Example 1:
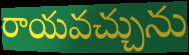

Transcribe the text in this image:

రాయవచ్చును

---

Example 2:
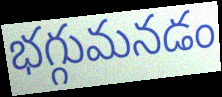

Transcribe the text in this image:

భగ్గుమనడం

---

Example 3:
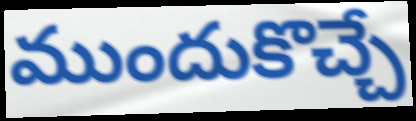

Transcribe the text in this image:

ముందుకొచ్చే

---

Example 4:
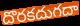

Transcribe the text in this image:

దొరకదుగదా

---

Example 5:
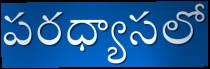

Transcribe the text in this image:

పరధ్యాసలో